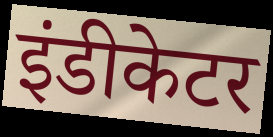
इंडीकेटर